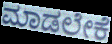
ಮಾಡಲೇಕೆ